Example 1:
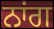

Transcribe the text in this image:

ਨਾਂਗ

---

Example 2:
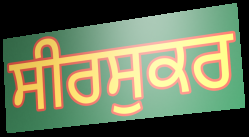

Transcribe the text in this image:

ਸੀਰਸੁਕਰ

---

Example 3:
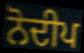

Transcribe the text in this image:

ਨੋਦੀਪ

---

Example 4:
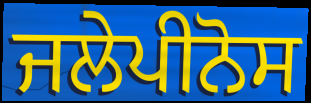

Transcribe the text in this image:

ਜਲੇਪੀਨੋਸ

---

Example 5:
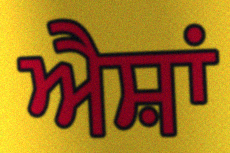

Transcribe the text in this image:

ਐਸ਼ਾਂ